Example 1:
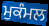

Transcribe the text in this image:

ਮੁਕੰਮਲ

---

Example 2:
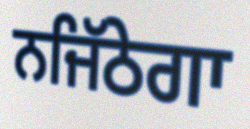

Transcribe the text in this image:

ਨਜਿੱਠੇਗਾ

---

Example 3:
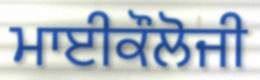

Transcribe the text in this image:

ਮਾਈਕੌਲੋਜੀ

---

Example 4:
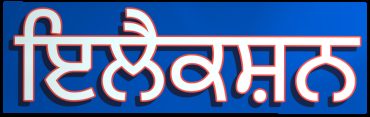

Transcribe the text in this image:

ਇਲੈਕਸ਼ਨ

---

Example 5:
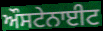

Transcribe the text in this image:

ਔਸਟੇਨਾਈਟ